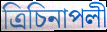
ত্রিচিনাপলী